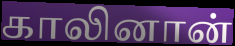
காலினான்